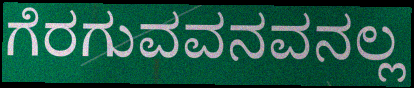
ಗೆರಗುವವನವನಲ್ಲ